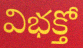
విభక్తో